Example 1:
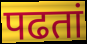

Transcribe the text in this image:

पढतां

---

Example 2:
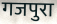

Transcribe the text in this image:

गजपुरा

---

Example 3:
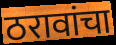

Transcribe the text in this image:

ठरावांचा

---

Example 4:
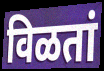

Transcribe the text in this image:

विळतां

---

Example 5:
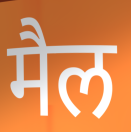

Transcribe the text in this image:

मैल